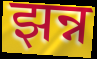
झन्न